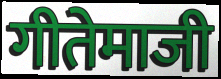
गीतेमाजी